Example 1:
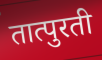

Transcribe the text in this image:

तात्पुरती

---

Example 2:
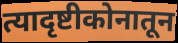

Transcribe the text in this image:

त्यादृष्टीकोनातून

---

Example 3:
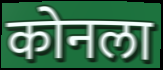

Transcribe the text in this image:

कोनला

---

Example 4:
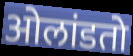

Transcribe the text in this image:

ओलांडतो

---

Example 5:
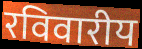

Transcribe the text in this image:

रविवारीय